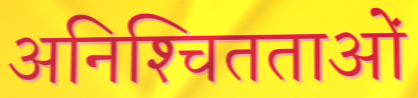
अनिश्‍चितताओं